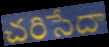
చరిసేదా